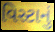
વિસ્ટાનું